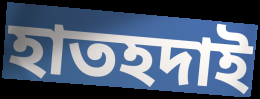
হাতহদাই